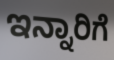
ಇನ್ನಾರಿಗೆ